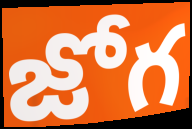
జోగ